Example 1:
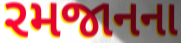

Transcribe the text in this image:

રમજાનના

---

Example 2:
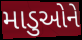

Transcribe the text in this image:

માડુઓને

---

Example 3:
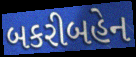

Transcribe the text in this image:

બકરીબહેન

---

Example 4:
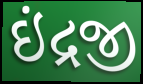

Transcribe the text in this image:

ઇંદ્રજી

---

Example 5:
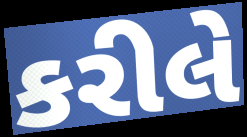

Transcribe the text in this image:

કરીલે